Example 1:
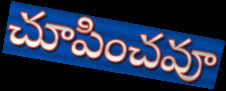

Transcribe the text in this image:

చూపించవూ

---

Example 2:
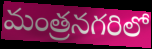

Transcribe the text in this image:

మంత్రనగరిలో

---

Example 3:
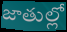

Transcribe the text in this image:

జాతుల్లో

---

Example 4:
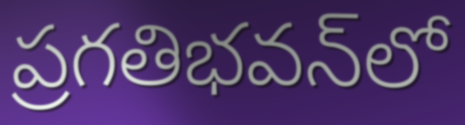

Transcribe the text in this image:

ప్రగతిభవన్‌లో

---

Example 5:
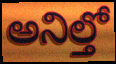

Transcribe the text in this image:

అనిల్తో